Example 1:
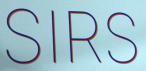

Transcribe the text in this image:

SIRS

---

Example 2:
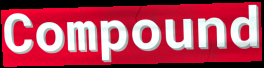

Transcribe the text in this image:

Compound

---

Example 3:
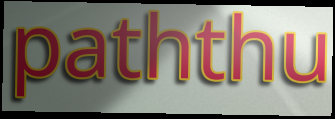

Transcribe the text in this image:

paththu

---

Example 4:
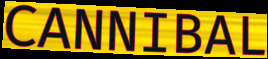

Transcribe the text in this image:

CANNIBAL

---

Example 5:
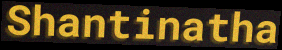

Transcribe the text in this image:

Shantinatha